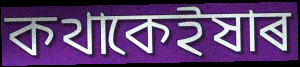
কথাকেইষাৰ